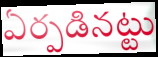
ఏర్పడినట్టు